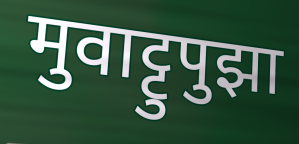
मुवाट्टुपुझा